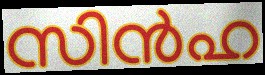
സിൻഹ